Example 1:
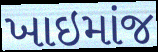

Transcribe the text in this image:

ખાઇમાંજ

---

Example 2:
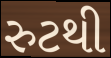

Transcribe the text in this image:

રુટથી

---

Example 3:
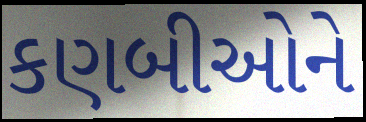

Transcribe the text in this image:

કણબીઓને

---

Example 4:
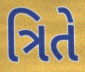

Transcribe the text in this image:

ત્રિતે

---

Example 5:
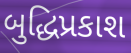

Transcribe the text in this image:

બુદ્ધિપ્રકાશ